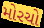
મોરચો